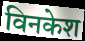
विनकेश